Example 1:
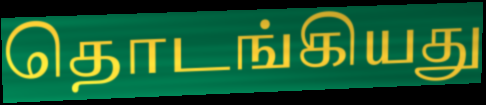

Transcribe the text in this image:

தொடங்கியது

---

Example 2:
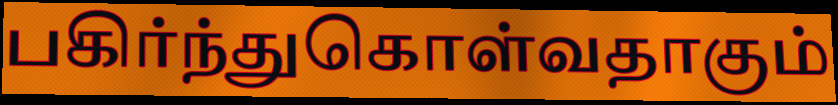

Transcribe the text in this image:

பகிர்ந்துகொள்வதாகும்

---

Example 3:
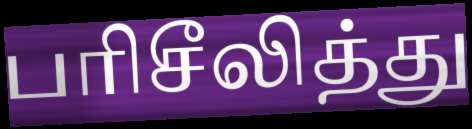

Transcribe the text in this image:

பரிசீலித்து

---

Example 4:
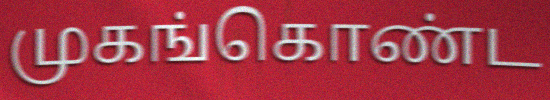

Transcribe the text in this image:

முகங்கொண்ட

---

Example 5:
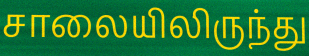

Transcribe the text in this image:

சாலையிலிருந்து